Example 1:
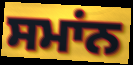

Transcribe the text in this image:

ਸਮਾਂਨ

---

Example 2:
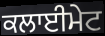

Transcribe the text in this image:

ਕਲਾਈਮੇਟ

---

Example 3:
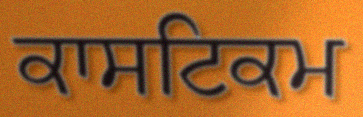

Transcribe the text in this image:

ਕਾਸਟਿਕਮ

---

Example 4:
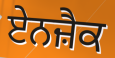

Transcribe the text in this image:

ਏਨਜ਼ੈਕ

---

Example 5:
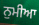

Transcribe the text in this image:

ਨੁਮੀਆ